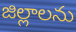
జిల్లాలను